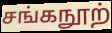
சங்கநூற்